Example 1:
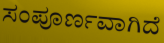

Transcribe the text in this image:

ಸಂಪೂರ್ಣವಾಗಿದೆ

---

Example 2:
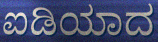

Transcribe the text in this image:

ಐಡಿಯಾದ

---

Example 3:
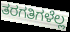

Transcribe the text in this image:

ತರಗತಿಗಳೆಲ್ಲ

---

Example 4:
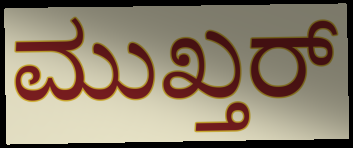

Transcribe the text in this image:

ಮುಖ್ತರ್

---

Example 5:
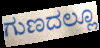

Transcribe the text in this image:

ಗುಣದಲ್ಲೂ